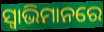
ସ୍ୱାଭିମାନରେ